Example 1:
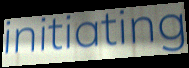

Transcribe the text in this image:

initiating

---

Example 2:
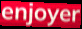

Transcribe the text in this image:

enjoyer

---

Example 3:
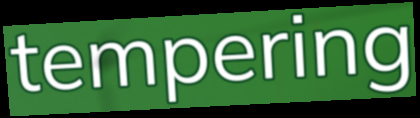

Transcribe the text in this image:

tempering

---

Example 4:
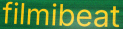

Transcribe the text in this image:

filmibeat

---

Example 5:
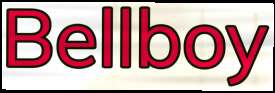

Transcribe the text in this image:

Bellboy